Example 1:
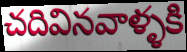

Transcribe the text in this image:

చదివినవాళ్ళకి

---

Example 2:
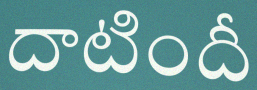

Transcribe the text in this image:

దాటిందీ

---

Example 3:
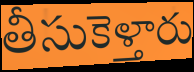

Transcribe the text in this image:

తీసుకెళ్తారు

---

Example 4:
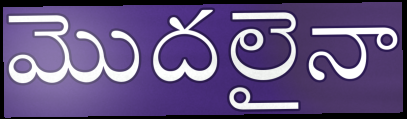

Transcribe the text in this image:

మొదలైనా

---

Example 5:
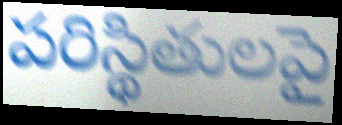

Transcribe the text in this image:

పరిస్థితులపై